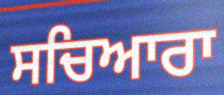
ਸਚਿਆਰਾ